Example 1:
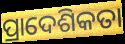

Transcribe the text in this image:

ପ୍ରାଦେଶିକତା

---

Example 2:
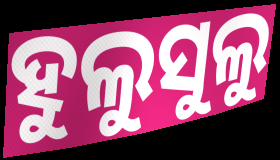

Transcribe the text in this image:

ହୁଲୁସୁଲୁ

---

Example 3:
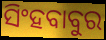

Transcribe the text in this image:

ସିଂହବାବୁର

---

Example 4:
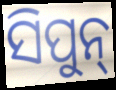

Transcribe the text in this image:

ସିପୁନ୍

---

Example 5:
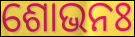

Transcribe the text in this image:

ଶୋଭନଃ